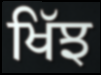
ਖਿੱਝ